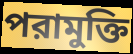
পরামুক্তি